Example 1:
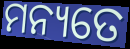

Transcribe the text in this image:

ମନ୍ୟତେ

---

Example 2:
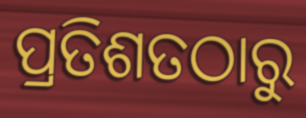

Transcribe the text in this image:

ପ୍ରତିଶତଠାରୁ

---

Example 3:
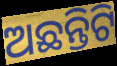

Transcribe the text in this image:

ଅଛନ୍ତିଟି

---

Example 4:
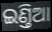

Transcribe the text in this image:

ଇଣ୍ତିଆ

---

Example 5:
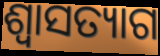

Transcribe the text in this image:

ଶ୍ବାସତ୍ୟାଗ